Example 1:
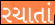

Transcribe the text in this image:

રચાતાં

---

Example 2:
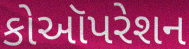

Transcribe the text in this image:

કોઑપરેશન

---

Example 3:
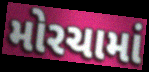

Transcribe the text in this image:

મોરચામાં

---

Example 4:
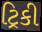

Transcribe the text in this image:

ટ્રિકી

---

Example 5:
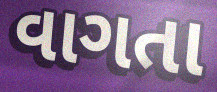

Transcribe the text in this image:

વાગતા